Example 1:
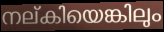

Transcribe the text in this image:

നല്‌കിയെങ്കിലും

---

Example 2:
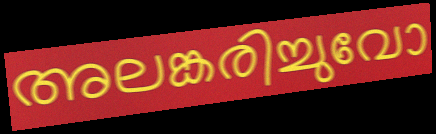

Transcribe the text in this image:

അലങ്കരിച്ചുവോ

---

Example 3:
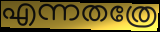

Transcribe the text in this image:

എന്നതത്രേ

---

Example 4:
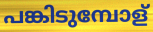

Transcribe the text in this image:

പങ്കിടുമ്പോള്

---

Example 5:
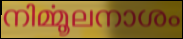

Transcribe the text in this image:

നിൎമ്മൂലനാശം